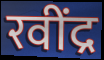
रवींद्र